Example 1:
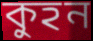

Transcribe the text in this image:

কুহন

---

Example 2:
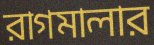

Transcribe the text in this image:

রাগমালার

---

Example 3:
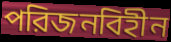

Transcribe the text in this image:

পরিজনবিহীন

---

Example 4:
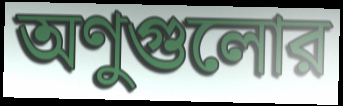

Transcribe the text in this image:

অণুগুলোর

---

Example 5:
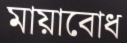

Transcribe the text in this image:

মায়াবোধ